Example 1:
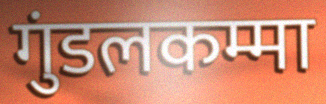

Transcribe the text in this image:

गुंडलकम्मा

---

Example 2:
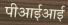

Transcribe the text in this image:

पीआईआई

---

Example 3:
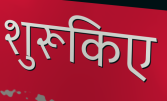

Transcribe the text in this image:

शुरूकिए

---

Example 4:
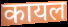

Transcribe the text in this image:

कायल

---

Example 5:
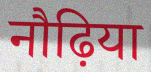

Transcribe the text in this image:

नौढ़िया